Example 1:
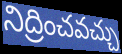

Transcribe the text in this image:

నిద్రించవచ్చు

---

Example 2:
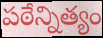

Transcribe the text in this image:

పఠేన్నిత్యం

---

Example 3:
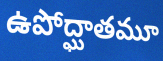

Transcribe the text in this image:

ఉపోద్ఘాతమూ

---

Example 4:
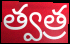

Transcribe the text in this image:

త్వత్ర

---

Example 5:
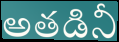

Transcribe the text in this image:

అతడినీ